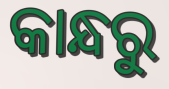
କାନ୍ଧରୁ